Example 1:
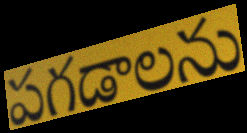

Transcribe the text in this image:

పగడాలను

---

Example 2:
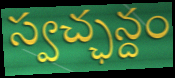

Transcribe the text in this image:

స్వచ్ఛన్దం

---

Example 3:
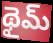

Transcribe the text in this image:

థైమ్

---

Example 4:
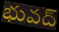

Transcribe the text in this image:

భువద్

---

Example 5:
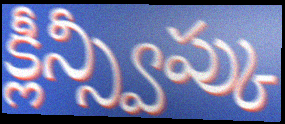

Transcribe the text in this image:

క్లీన్స్వీప్కు